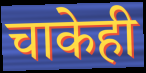
चाकेही